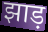
झाड़